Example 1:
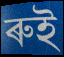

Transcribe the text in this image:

ৰুই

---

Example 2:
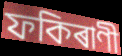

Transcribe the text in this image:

ফকিৰাণী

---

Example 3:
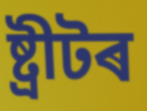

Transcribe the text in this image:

ষ্ট্ৰীটৰ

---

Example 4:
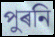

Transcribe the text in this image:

পুৰনি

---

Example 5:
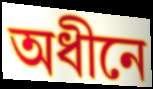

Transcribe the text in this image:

অধীনে